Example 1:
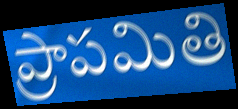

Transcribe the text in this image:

ప్రాపమితి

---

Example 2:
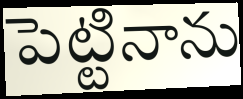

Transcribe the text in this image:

పెట్టినాను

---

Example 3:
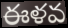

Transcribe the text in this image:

ఈళవ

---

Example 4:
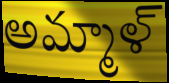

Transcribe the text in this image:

అమ్మాళ్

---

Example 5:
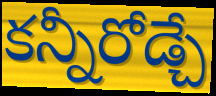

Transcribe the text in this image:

కన్నీరోడ్చే